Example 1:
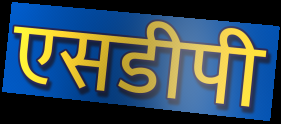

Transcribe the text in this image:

एसडीपी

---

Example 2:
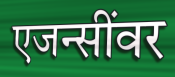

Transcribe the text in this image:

एजन्सींवर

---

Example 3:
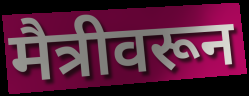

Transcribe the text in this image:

मैत्रीवरून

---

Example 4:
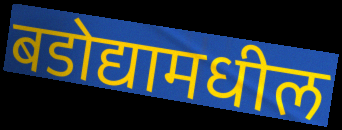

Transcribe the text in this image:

बडोद्यामधील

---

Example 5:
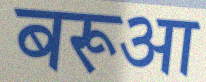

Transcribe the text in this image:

बरूआ